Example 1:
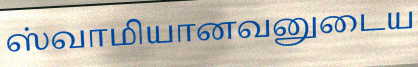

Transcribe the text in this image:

ஸ்வாமியானவனுடைய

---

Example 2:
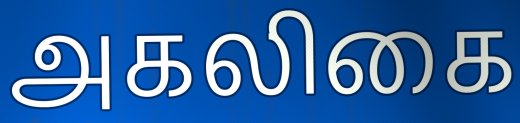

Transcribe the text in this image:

அகலிகை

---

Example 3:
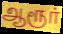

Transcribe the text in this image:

ஆரூர்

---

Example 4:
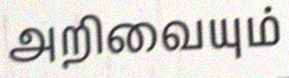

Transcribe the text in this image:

அறிவையும்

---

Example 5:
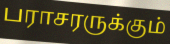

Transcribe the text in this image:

பராசரருக்கும்